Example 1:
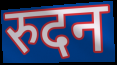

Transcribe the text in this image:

रुदन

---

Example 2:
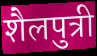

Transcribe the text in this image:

शैलपुत्री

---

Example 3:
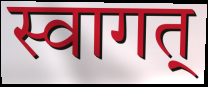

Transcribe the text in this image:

स्वागत्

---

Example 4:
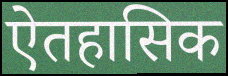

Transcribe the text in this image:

ऐतहासिक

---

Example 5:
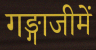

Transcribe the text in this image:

गङ्गाजीमें